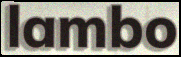
lambo